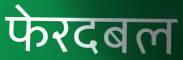
फेरदबल